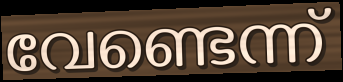
വേണ്ടെന്ന്